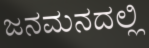
ಜನಮನದಲ್ಲಿ